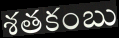
శతకంబు